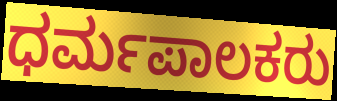
ಧರ್ಮಪಾಲಕರು